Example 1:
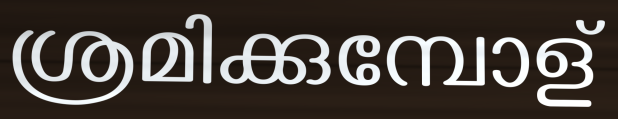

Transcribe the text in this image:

ശ്രമിക്കുമ്പോള്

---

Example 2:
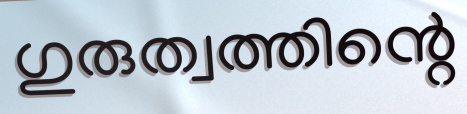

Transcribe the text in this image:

ഗുരുത്വത്തിന്റെ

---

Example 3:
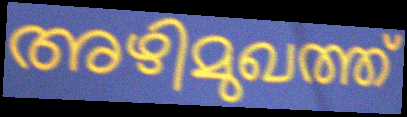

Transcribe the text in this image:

അഴിമുഖത്ത്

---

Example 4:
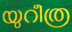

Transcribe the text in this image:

യുറീത്ര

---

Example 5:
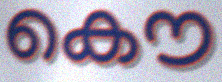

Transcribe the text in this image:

കൌ